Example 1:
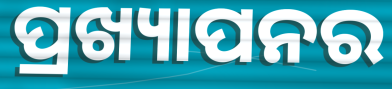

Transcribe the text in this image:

ପ୍ରଖ୍ୟାପନର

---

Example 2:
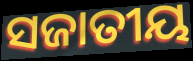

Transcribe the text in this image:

ସଜାତୀୟ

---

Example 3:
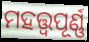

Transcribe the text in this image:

ମହତ୍ତ୍ଵପୂର୍ଣ୍ଣ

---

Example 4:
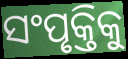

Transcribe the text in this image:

ସଂପୃକ୍ତିକୁ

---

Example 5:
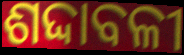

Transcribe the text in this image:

ଶଦ୍ଦାବଳୀ